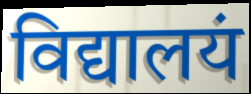
विद्यालयं